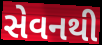
સેવનથી